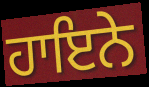
ਹਾਇਨੇ